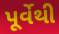
પૂર્વેથી